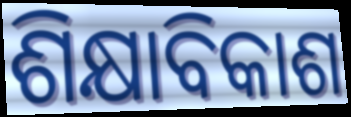
ଶିକ୍ଷାବିକାଶ